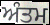
ਅੰਤਮ